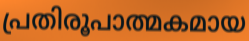
പ്രതിരൂപാത്മകമായ